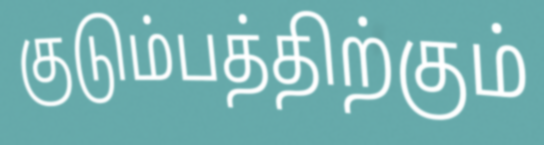
குடும்பத்திற்கும்